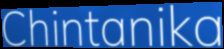
Chintanika